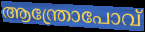
ആന്ത്രോപോവ്